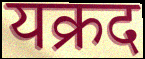
यक्रद